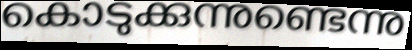
കൊടുക്കുന്നുണ്ടെന്നു